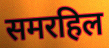
समरहिल